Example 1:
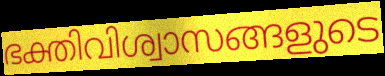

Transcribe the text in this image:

ഭക്തിവിശ്വാസങ്ങളുടെ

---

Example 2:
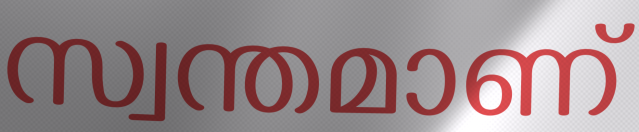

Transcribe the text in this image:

സ്വന്തമാണ്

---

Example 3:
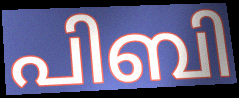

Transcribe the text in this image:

പിബി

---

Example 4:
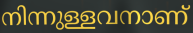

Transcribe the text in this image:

നിന്നുള്ളവനാണ്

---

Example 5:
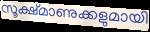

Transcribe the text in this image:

സൂക്ഷ്മാണുക്കളുമായി